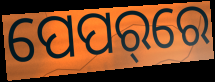
ପେପର୍‌ରେ